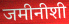
जमीनीशी